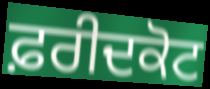
ਫ਼ਰੀਦਕੋਟ